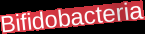
Bifidobacteria